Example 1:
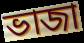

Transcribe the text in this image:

ভাজা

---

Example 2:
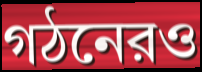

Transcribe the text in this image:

গঠনেরও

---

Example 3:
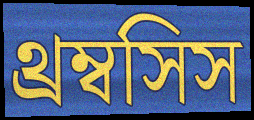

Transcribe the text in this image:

থ্রম্বসিস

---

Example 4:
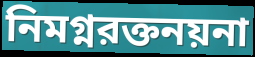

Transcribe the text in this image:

নিমগ্নরক্তনয়না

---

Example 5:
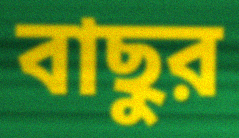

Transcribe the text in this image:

বাছুর